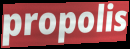
propolis